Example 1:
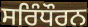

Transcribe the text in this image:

ਸਰਿੰਧੌਰਨ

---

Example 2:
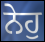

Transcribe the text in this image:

ਨੇਹੁ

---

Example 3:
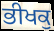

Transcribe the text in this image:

ਭੀਖਕੁ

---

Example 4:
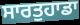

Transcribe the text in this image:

ਸਾਰਤੁਹਾਡਾ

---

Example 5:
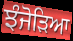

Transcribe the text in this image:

ਝੰਜੋੜਿਆ